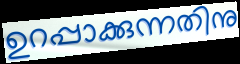
ഉറപ്പാക്കുന്നതിനു